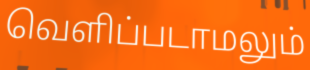
வெளிப்படாமலும்